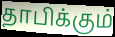
தாபிக்கும்